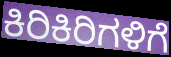
ಕಿರಿಕಿರಿಗಳಿಗೆ